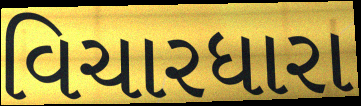
વિચારધારા